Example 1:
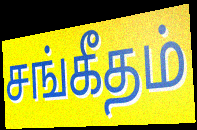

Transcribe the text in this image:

சங்கீதம்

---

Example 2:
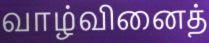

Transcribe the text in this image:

வாழ்வினைத்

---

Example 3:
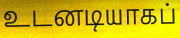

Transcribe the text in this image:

உடனடியாகப்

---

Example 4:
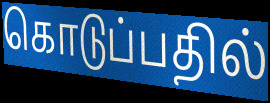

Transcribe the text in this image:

கொடுப்பதில்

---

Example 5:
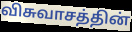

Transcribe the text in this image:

விசுவாசத்தின்